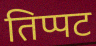
तिप्पट